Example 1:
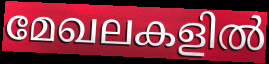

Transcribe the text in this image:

മേഖലകളിൽ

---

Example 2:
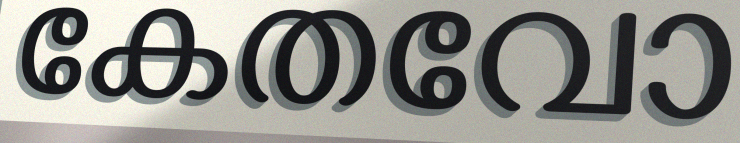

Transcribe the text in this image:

കേതവോ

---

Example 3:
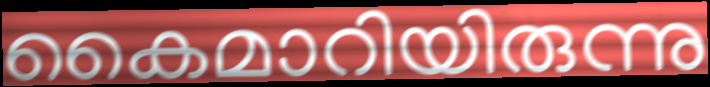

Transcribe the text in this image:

കൈമാറിയിരുന്നു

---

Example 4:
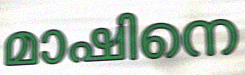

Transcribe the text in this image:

മാഷിനെ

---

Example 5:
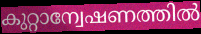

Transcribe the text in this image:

കുറ്റാന്വേഷണത്തിൽ